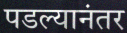
पडल्यानंतर